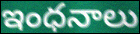
ఇంధనాలు